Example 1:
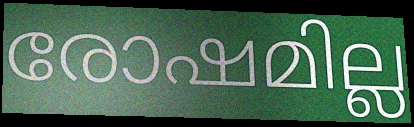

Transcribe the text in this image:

രോഷമില്ല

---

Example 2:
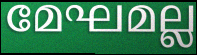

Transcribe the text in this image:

മേഘമല്ല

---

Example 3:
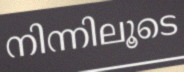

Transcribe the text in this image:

നിന്നിലൂടെ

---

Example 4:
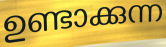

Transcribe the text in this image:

ഉണ്ടാക്കുന്ന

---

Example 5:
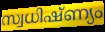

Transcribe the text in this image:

സ്വധിഷ്ണ്യം